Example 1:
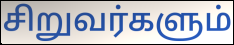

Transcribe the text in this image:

சிறுவர்களும்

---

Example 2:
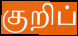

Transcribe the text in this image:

குறிப்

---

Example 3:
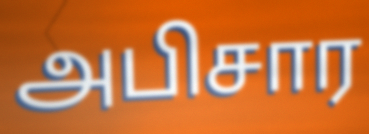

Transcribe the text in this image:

அபிசார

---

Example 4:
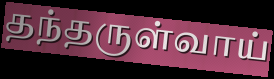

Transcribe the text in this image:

தந்தருள்வாய்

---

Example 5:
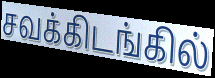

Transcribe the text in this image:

சவக்கிடங்கில்